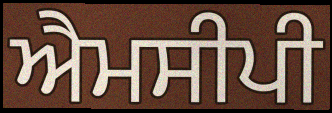
ਐਮਸੀਪੀ